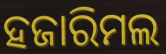
ହଜାରିମଲ